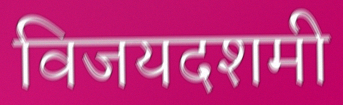
विजयदशमी